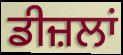
ਡੀਜ਼ਲਾਂ